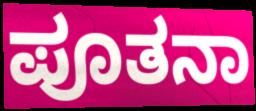
ಪೂತನಾ